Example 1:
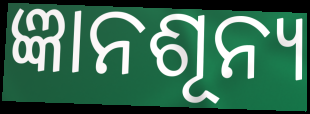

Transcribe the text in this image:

ଜ୍ଞାନଶୂନ୍ୟ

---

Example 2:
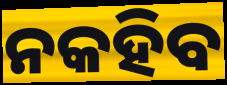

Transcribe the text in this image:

ନକହିବ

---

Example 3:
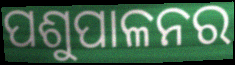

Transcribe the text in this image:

ପଶୁପାଳନର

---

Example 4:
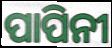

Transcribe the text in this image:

ପାପିନୀ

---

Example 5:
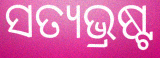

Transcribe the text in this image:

ସତ୍ୟଭ୍ରଷ୍ଟ